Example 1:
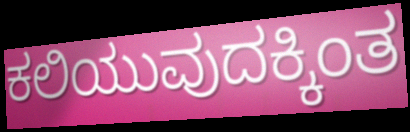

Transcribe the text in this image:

ಕಲಿಯುವುದಕ್ಕಿಂತ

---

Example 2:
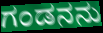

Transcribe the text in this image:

ಗಂಡನನು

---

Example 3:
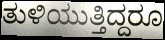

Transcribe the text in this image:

ತುಳಿಯುತ್ತಿದ್ದರೂ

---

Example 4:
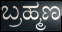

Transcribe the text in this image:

ಬ್ರಹ್ಮಣ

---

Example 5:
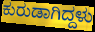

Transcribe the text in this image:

ಕುರುಡಾಗಿದ್ದಳು